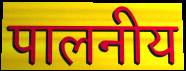
पालनीय